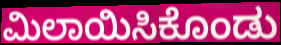
ಮಿಲಾಯಿಸಿಕೊಂಡು